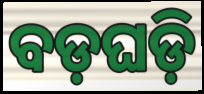
ବଡ଼ଘଡ଼ି